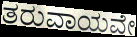
ತರುವಾಯವೇ